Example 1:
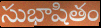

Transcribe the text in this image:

సుభాషితం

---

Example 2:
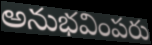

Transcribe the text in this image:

అనుభవింపరు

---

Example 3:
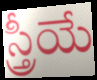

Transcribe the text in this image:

స్త్రీయే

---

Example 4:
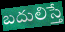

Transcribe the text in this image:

బదులిస్తే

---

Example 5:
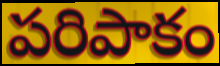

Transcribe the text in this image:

పరిపాకం